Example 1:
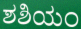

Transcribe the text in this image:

ಶಶಿಯಂ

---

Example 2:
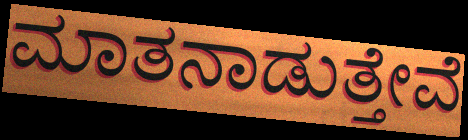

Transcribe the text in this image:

ಮಾತನಾಡುತ್ತೇವೆ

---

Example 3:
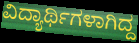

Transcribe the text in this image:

ವಿದ್ಯಾರ್ಥಿಗಳಾಗಿದ್ದ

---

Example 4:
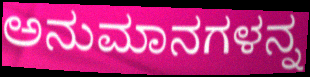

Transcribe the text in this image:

ಅನುಮಾನಗಳನ್ನ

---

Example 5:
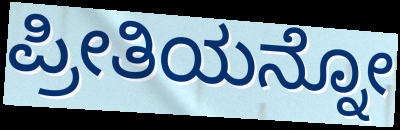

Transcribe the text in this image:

ಪ್ರೀತಿಯನ್ನೋ